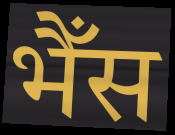
भैँस